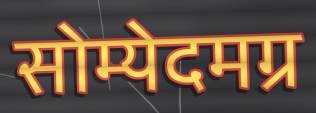
सोम्येदमग्र